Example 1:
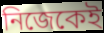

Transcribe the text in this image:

নিজেকেই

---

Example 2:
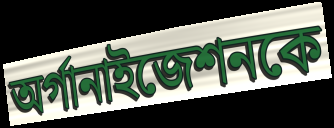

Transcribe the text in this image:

অর্গানাইজেশনকে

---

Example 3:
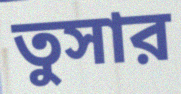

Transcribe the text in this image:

তুসার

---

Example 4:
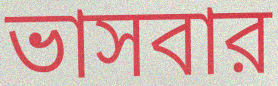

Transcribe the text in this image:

ভাসবার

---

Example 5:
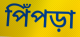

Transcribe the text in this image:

পিঁপড়া